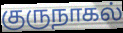
குருநாகல்